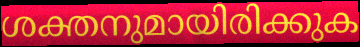
ശക്തനുമായിരിക്കുക